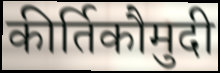
कीर्तिकौमुदी